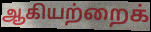
ஆகியற்றைக்